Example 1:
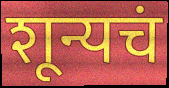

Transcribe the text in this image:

शून्यचं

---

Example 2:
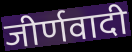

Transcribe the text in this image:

जीर्णवादी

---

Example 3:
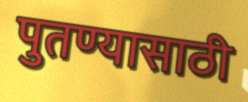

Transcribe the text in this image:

पुतण्यासाठी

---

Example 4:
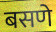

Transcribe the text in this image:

बसणे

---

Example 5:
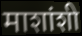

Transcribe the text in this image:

माशांशी